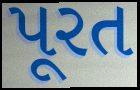
પૂરત